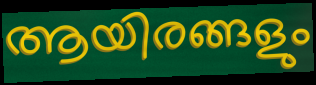
ആയിരങ്ങളും